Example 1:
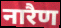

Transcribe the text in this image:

नारैण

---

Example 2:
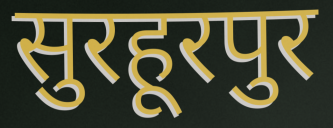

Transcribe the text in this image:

सुरहूरपुर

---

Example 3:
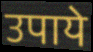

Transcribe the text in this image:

उपाये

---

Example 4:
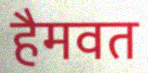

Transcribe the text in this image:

हैमवत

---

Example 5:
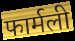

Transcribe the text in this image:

फार्मली